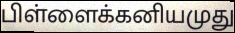
பிள்ளைக்கனியமுது